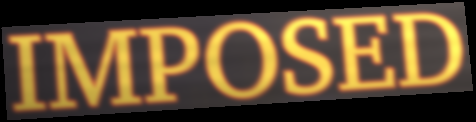
IMPOSED